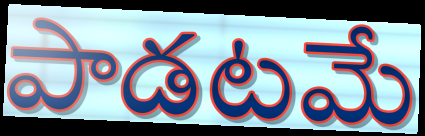
పాడటమే